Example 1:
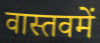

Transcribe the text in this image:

वास्तवमें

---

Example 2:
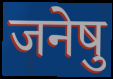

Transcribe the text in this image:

जनेषु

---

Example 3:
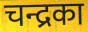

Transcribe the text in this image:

चन्द्रका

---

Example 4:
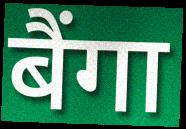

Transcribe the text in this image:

बैंगा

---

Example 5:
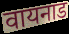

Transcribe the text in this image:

वायनाड